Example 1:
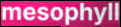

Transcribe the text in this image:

mesophyll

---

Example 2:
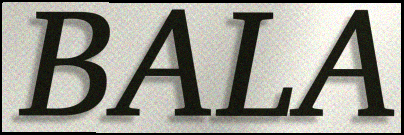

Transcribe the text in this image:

BALA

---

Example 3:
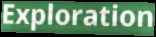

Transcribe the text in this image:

Exploration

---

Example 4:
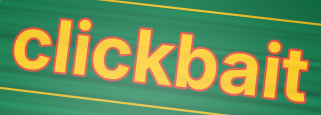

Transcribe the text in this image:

clickbait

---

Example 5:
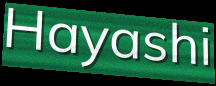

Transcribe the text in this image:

Hayashi